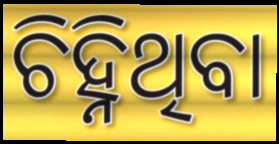
ଚିହ୍ନିଥିବା